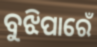
ବୁଝିପାରେଁ